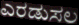
ಎರಡುಸಲ